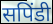
सपिंडी